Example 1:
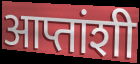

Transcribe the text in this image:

आप्तांशी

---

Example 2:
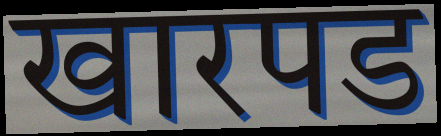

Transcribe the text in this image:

खारपड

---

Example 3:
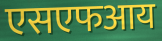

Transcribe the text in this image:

एसएफआय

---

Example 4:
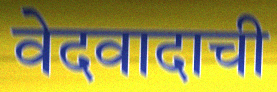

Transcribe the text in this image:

वेदवादाची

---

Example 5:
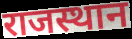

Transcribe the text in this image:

राजस्थान